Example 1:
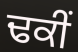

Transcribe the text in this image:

ਢਕੀਂ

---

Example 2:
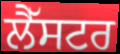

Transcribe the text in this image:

ਲੈੱਸਟਰ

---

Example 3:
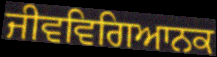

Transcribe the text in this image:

ਜੀਵਵਿਗਿਆਨਕ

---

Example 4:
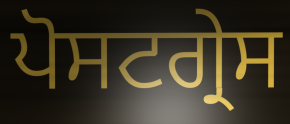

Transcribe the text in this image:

ਪੋਸਟਗ੍ਰੇਸ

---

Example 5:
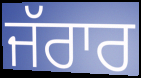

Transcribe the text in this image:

ਜੱਰਾਰ